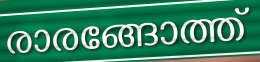
രാരങ്ങോത്ത്